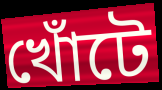
খোঁটে